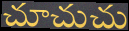
చూచుచు